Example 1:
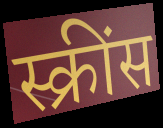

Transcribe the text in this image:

स्क्रींस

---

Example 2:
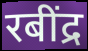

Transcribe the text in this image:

रबींद्र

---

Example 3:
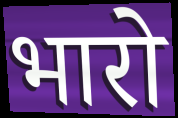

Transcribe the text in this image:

भारो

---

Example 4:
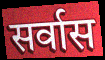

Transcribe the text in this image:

सर्वास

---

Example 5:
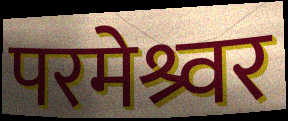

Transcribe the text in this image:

परमेश्र्वर